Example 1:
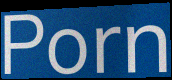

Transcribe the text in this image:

Porn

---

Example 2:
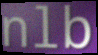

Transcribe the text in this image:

nlb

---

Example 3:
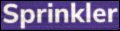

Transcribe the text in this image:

Sprinkler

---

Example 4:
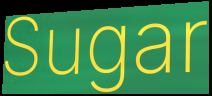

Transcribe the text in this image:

Sugar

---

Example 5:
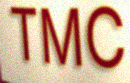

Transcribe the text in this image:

TMC